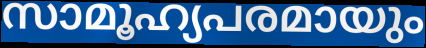
സാമൂഹ്യപരമായും